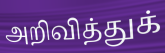
அறிவித்துக்